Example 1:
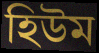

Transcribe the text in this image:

হিউম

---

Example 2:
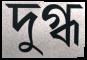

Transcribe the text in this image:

দুগ্ধ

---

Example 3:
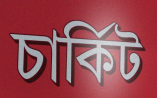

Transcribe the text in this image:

চাৰ্কিট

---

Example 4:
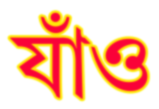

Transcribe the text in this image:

যাঁও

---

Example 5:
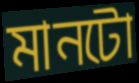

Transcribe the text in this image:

মানটো